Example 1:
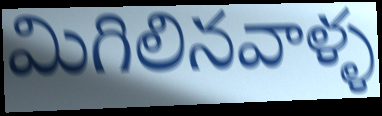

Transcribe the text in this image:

మిగిలినవాళ్ళ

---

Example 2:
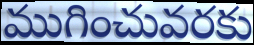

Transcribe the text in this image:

ముగించువరకు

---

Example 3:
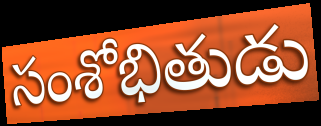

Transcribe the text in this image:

సంశోభితుడు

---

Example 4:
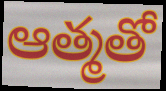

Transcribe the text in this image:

ఆత్మతో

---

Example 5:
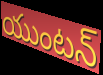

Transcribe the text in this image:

యుంటన్